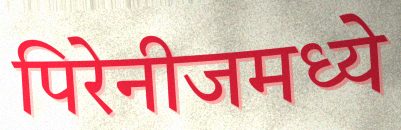
पिरेनीजमध्ये